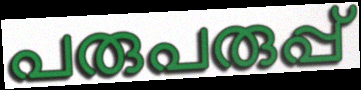
പരുപരുപ്പ്